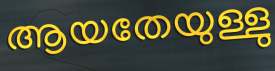
ആയതേയുള്ളു